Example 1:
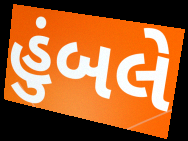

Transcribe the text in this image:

હુંબલે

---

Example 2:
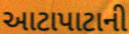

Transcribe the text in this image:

આટાપાટાની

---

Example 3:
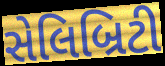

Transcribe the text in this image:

સેલિબ્રિટી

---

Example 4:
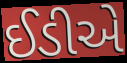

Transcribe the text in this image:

ઈડીએ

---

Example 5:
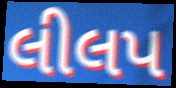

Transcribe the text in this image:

લીલપ